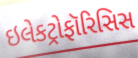
ઇલેકટ્રોફૉરિસિસ